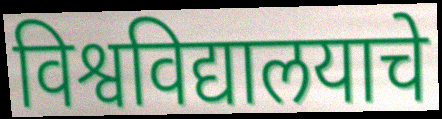
विश्वविद्यालयाचे